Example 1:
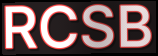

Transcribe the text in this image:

RCSB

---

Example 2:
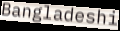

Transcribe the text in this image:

Bangladeshi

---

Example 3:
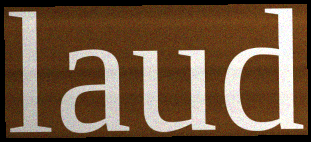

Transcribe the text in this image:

laud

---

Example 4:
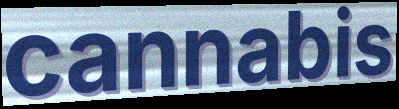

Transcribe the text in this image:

cannabis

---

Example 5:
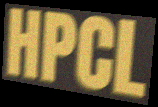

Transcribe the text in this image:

HPCL